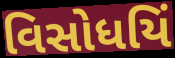
વિસોધયિં